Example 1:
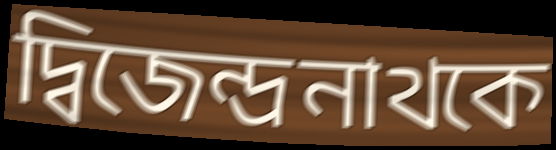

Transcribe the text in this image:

দ্বিজেন্দ্রনাথকে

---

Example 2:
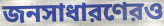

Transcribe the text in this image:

জনসাধারণেরও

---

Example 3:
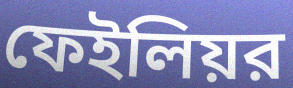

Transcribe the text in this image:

ফেইলিয়র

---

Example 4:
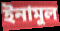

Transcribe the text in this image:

ইনামুল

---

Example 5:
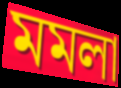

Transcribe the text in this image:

মমলা